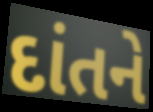
દાંતને